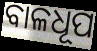
ବାଳଧୂପ